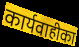
कार्यवाहीका